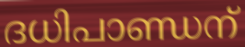
ദധിപാണ്ഡന്